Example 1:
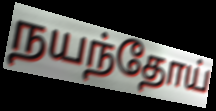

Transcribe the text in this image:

நயந்தோய்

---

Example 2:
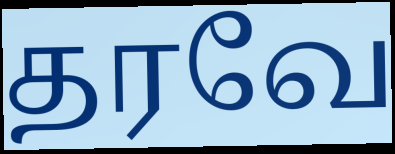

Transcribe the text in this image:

தரவே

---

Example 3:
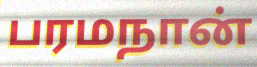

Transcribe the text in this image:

பரமநான்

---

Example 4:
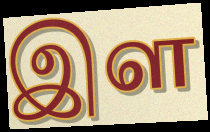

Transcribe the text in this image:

இள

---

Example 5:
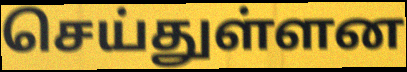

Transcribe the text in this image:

செய்துள்ளன